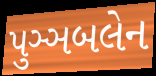
પુઞ્ઞબલેન